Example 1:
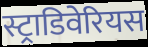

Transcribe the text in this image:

स्ट्राडिवेरियस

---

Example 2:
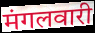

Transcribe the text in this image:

मंगलवारी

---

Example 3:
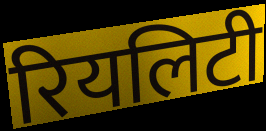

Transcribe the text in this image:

रियलिटी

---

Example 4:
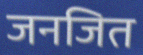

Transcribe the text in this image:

जनजित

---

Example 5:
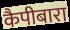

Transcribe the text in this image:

कैपीबारा